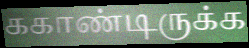
ககாண்டிருக்க